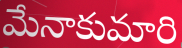
మేనాకుమారి